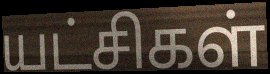
யட்சிகள்